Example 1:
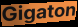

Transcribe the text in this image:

Gigaton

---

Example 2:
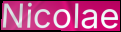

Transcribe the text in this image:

Nicolae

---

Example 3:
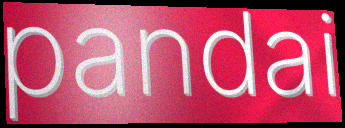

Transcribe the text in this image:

pandai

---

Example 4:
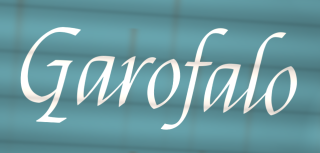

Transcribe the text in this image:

Garofalo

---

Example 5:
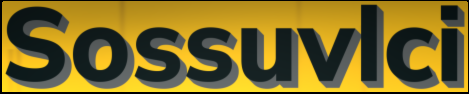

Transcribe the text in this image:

Sossuvlci